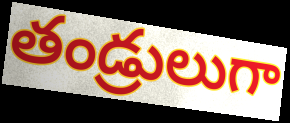
తండ్రులుగా